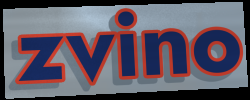
zvino